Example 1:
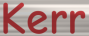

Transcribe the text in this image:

Kerr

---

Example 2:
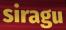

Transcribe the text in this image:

siragu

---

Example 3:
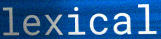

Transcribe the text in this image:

lexical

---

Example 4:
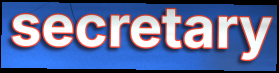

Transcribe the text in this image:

secretary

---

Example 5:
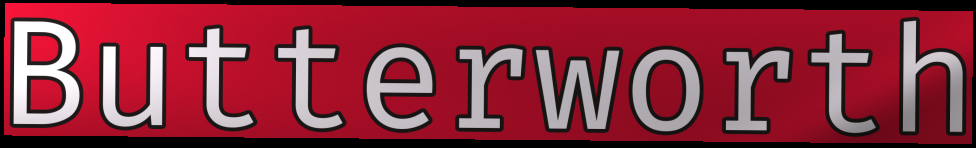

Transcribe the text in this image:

Butterworth